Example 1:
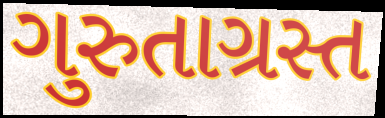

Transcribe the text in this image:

ગુરુતાગ્રસ્ત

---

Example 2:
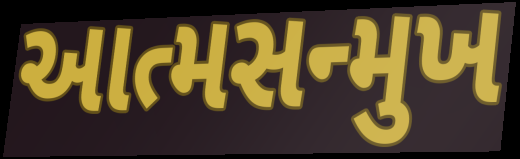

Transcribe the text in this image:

આત્મસન્મુખ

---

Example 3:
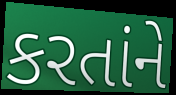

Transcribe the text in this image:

કરતાંને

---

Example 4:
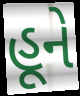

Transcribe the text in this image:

હૂને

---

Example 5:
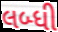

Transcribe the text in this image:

લબ્ધી